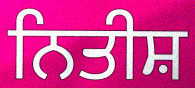
ਨਿਤੀਸ਼